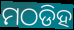
ମଠଡିହ